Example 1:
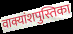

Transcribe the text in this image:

वाक्यांशपुस्तिका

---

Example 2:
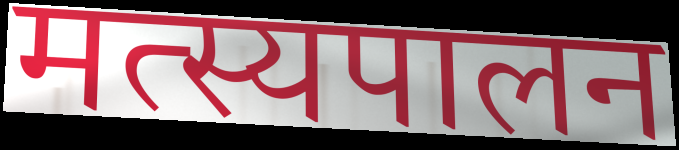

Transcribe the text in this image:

मत्स्यपालन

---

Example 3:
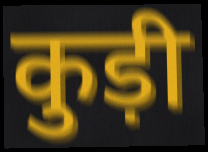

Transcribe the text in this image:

कुड़ी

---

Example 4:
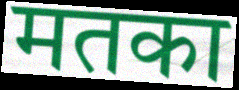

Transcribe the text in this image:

मतका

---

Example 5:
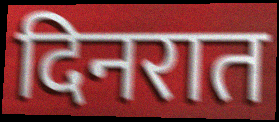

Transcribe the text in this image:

दिनरात